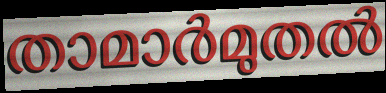
താമാർമുതൽ